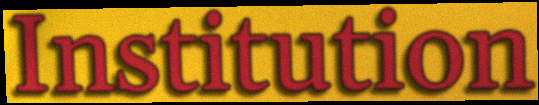
Institution